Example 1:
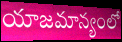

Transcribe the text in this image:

యాజమాన్యంలో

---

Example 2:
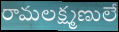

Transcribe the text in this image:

రామలక్ష్మణులే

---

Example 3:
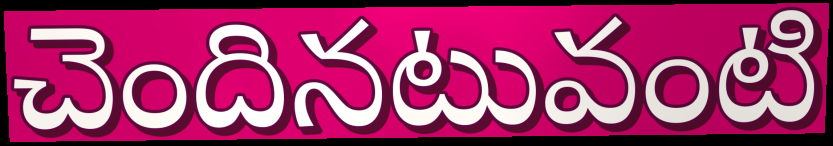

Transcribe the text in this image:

చెందినటువంటి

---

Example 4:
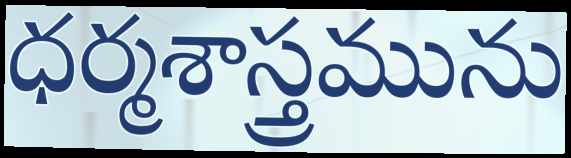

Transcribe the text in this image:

ధర్మశాస్త్రమును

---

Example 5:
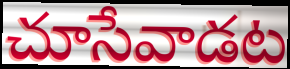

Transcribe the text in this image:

చూసేవాడట